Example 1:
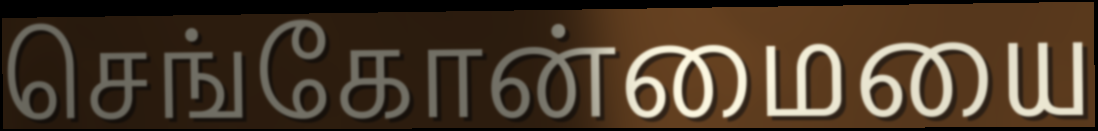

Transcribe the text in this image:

செங்கோன்மையை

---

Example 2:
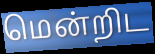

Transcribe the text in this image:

மென்றிட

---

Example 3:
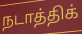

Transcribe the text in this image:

நடாத்திக்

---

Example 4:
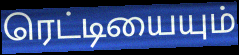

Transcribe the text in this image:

ரெட்டியையும்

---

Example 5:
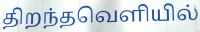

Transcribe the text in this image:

திறந்தவெளியில்